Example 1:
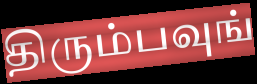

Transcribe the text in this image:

திரும்பவுங்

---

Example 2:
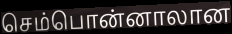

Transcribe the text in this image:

செம்பொன்னாலான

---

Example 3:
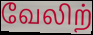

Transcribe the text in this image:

வேலிற்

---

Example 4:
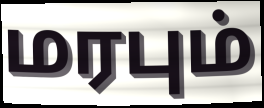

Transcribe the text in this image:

மரபும்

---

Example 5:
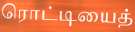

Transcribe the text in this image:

ரொட்டியைத்